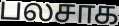
பலசாக